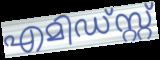
എമിഡ്സ്റ്റ്